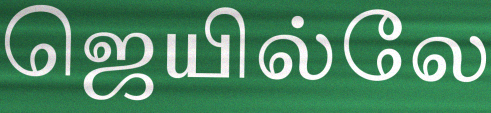
ஜெயில்லே